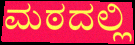
ಮಠದಲ್ಲಿ